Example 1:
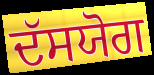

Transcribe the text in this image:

ਦੱਸਯੋਗ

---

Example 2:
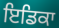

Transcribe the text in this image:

ਇਡਿਕਾ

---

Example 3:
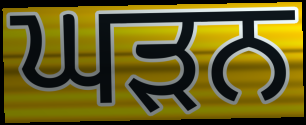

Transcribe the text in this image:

ਘੜਨ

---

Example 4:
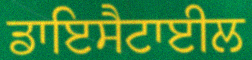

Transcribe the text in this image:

ਡਾਇਸੈਟਾਈਲ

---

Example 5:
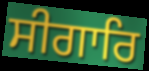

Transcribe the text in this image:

ਸੀਗਾਰਿ